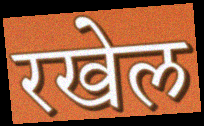
रखेल